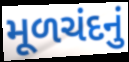
મૂળચંદનું